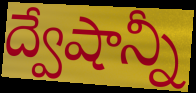
ద్వేషాన్నీ